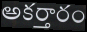
అకర్తారం